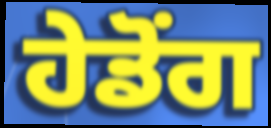
ਹੇਡੋਂਗ